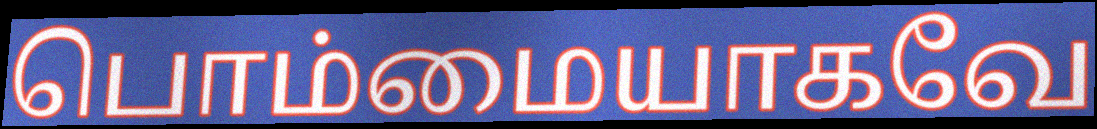
பொம்மையாகவே